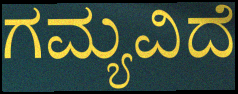
ಗಮ್ಯವಿದೆ